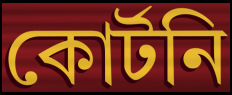
কোর্টনি